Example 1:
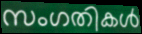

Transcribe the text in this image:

സംഗതികൾ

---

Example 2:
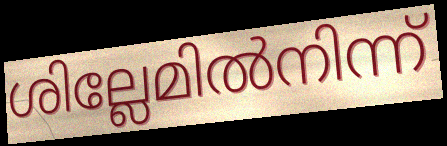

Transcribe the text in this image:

ശില്ലേമിൽനിന്ന്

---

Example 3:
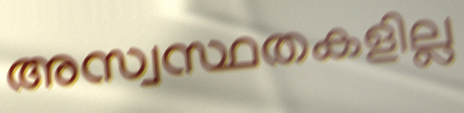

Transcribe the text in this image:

അസ്വസ്ഥതകളില്ല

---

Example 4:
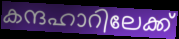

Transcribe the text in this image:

കന്ദഹാറിലേക്ക്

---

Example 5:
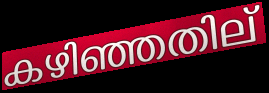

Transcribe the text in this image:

കഴിഞ്ഞതില്